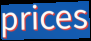
prices